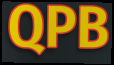
QPB